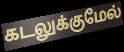
கடலுக்குமேல்